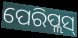
ପେରିପ୍ଲସ୍